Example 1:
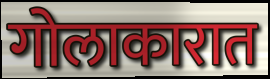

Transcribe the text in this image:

गोलाकारात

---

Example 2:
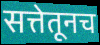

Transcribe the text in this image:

सत्तेतूनच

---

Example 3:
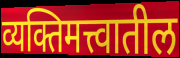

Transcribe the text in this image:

व्यक्तिमत्त्वातील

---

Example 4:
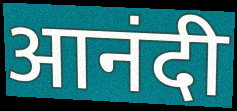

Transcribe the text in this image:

आनंदी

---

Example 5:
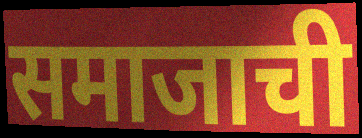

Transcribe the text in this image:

समाजाची